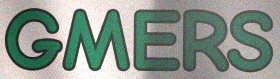
GMERS